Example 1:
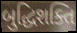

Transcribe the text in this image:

બુદ્ધિશક્તિ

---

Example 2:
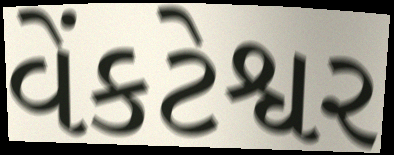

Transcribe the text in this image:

વેંકટેશ્વર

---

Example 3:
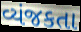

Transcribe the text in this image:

વ્યંજકતા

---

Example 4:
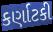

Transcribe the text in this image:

કર્ણાટકી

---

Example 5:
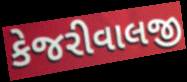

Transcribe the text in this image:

કેજરીવાલજી